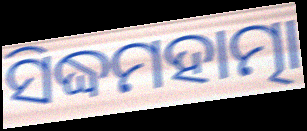
ସିଦ୍ଧମହାତ୍ମା